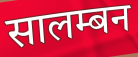
सालम्बन